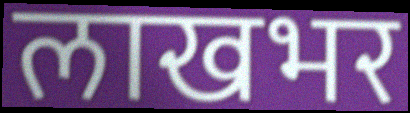
लाखभर